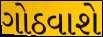
ગોઠવાશે